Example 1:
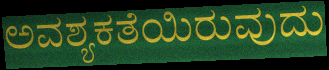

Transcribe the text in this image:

ಅವಶ್ಯಕತೆಯಿರುವುದು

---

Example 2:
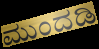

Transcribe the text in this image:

ಮುಂದಡಿ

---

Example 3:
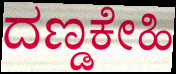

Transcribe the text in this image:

ದಣ್ಡಕೇಹಿ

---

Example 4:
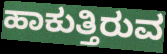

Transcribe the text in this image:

ಹಾಕುತ್ತಿರುವ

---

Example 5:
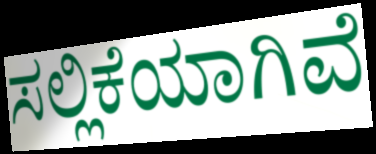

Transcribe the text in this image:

ಸಲ್ಲಿಕೆಯಾಗಿವೆ